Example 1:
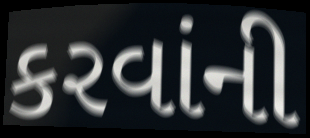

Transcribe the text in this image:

કરવાંની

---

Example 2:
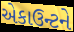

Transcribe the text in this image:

એકાઉન્ટને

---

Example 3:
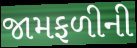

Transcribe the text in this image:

જામફળીની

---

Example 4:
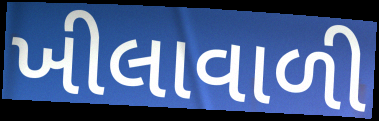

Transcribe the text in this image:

ખીલાવાળી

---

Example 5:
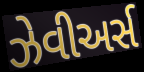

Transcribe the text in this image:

ઝેવીઅર્સ